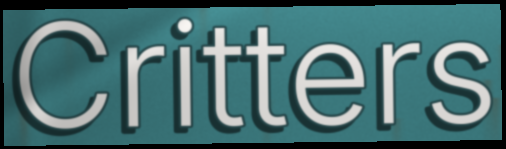
Critters